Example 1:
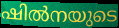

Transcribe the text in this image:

ഷിൽനയുടെ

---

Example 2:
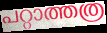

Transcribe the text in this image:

പറ്റാത്തത്ര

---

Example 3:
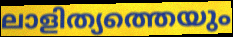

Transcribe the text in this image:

ലാളിത്യത്തെയും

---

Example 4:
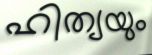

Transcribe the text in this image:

ഹിത്യയും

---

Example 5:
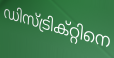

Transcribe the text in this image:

ഡിസ്ട്രിക്റ്റിനെ